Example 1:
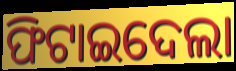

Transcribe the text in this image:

ଫିଟାଇଦେଲା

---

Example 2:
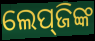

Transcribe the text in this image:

ଲେପ୍‌ଜିଙ୍କ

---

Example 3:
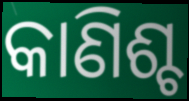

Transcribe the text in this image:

କାଣିଶ୍ଚ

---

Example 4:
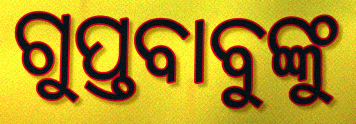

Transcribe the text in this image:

ଗୁପ୍ତବାବୁଙ୍କୁ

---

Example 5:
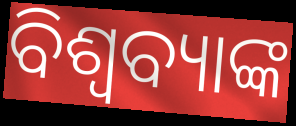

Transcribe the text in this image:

ବିଶ୍ୱବ୍ୟାଙ୍କ